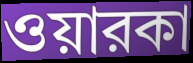
ওয়ারকা